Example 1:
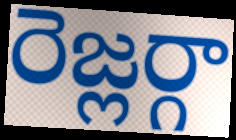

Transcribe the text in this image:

రెజ్లర్గా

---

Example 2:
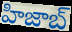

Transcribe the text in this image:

హిజాబ్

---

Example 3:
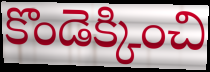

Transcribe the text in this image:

కొండెక్కించి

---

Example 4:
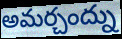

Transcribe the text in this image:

అమర్చంద్ను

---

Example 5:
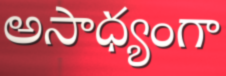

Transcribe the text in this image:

అసాధ్యంగా